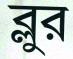
ব্লুর